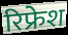
रिफ्रेश